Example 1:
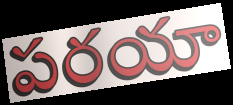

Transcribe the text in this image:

పరయా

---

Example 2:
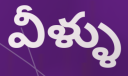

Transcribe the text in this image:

వీళ్ళు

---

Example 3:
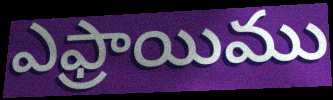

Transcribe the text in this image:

ఎఫ్రాయిము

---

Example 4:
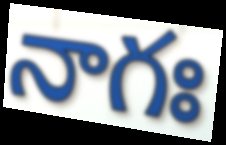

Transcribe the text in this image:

నాగః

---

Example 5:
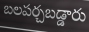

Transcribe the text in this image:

బలపర్చబడ్డారు